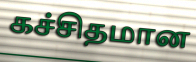
கச்சிதமான